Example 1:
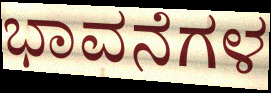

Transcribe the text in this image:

ಭಾವನೆಗಳ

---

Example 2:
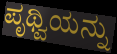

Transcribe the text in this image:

ಪೃಥ್ವಿಯನ್ನು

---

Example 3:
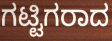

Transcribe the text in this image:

ಗಟ್ಟಿಗರಾದ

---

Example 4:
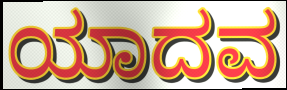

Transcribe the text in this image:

ಯಾದವ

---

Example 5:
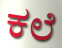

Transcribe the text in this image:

ಕಲೆ